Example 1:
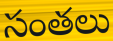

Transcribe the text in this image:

సంతలు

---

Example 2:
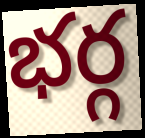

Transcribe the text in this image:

భర్గ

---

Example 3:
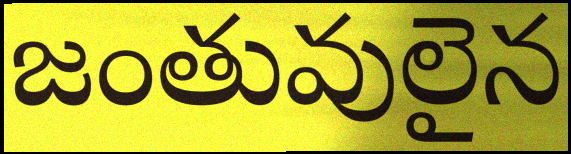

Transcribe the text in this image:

జంతువులైన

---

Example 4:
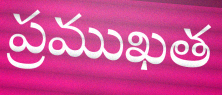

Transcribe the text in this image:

ప్రముఖత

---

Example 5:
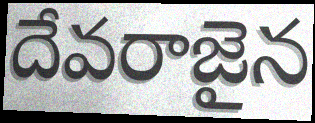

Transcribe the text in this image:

దేవరాజైన